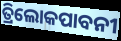
ତ୍ରିଲୋକପାବନୀ